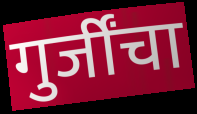
गुर्जींचा